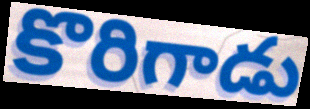
కొరిగాడు